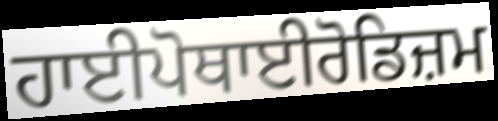
ਹਾਈਪੋਥਾਈਰੋਡਿਜ਼ਮ